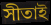
সীতাই